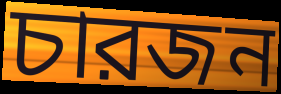
চারজন